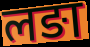
लङा